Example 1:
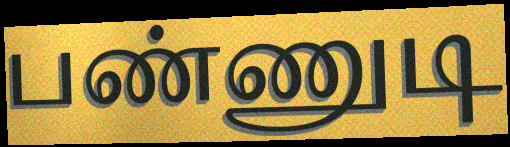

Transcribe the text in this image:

பண்ணுடி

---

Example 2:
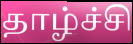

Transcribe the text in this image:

தாழ்ச்சி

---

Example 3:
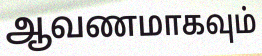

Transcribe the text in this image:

ஆவணமாகவும்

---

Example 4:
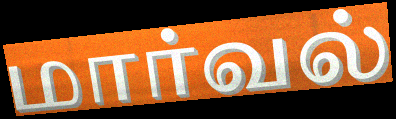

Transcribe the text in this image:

மார்வல்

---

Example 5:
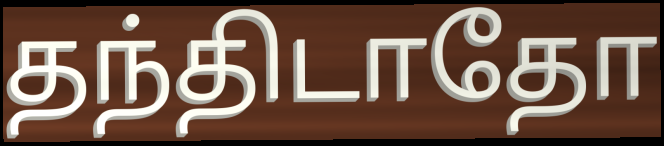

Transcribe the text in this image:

தந்திடாதோ